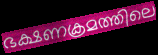
ഭക്ഷണക്രമത്തിലെ